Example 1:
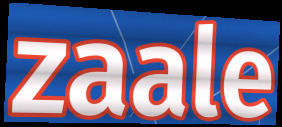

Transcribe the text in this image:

zaale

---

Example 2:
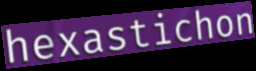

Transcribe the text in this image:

hexastichon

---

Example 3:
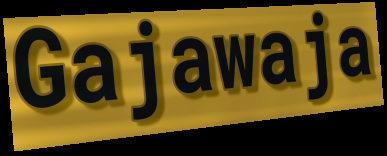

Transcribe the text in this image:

Gajawaja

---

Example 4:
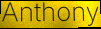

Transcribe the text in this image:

Anthony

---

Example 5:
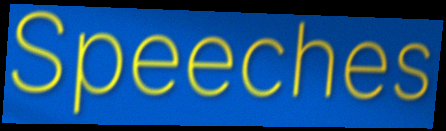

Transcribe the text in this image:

Speeches